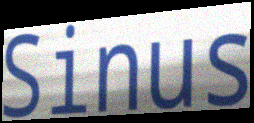
Sinus